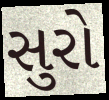
સુરો